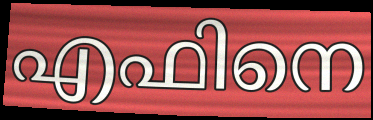
എഫിനെ